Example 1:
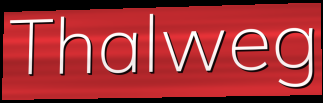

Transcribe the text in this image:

Thalweg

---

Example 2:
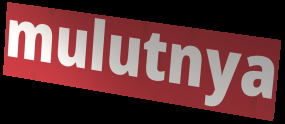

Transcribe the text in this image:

mulutnya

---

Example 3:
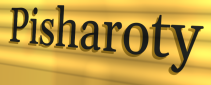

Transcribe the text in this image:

Pisharoty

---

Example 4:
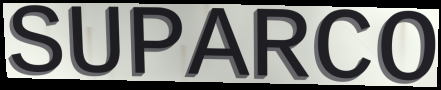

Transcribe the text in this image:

SUPARCO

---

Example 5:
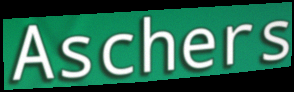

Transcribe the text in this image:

Aschers